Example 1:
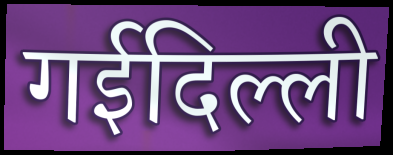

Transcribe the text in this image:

गईदिल्ली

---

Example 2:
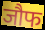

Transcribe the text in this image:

जौफ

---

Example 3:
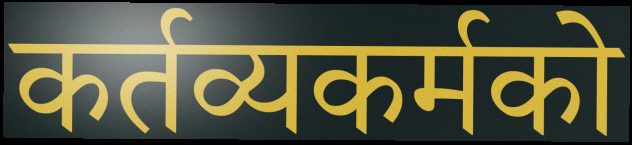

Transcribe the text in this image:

कर्तव्यकर्मको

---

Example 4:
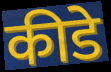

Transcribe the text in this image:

कीडे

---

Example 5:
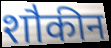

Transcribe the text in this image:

शौकीन